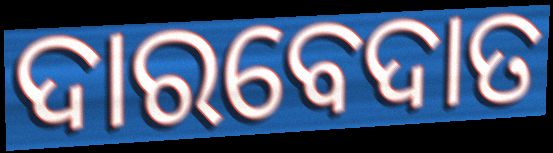
ଦାରବେଦାତ